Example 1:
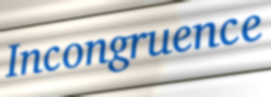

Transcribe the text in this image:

Incongruence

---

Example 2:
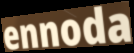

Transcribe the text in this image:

ennoda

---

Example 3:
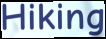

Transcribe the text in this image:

Hiking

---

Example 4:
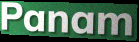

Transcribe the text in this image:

Panam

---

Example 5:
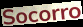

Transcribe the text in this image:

Socorro